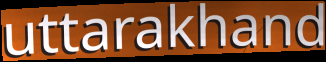
uttarakhand